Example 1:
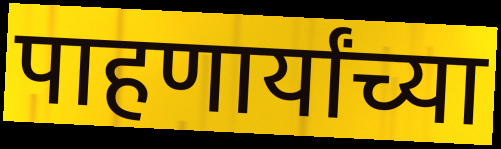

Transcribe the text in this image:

पाहणार्यांच्या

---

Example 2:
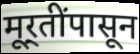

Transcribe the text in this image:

मूर्तींपासून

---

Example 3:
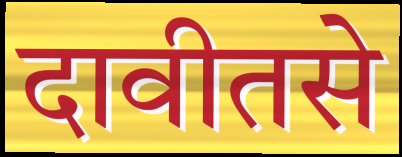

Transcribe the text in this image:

दावीतसे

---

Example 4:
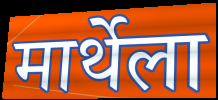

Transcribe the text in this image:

मार्थेला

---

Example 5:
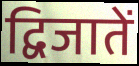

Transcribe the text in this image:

द्विजातें